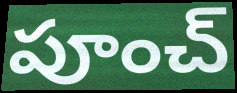
పూంచ్